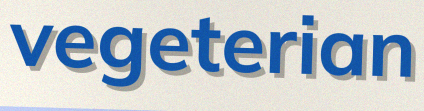
vegeterian